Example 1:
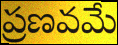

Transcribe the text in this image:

ప్రణవమే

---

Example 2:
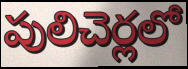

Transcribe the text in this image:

పులిచెర్లలో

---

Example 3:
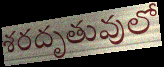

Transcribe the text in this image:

శరదృతువులో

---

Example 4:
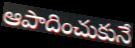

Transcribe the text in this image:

ఆపాదించుకునే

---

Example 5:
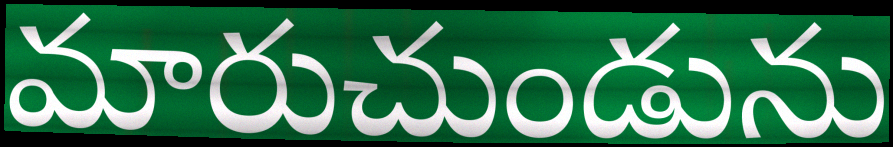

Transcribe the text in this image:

మారుచుండును